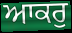
ਆਕਰੁ